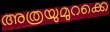
അത്രയുമുറക്കെ